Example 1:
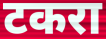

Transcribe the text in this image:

टकरा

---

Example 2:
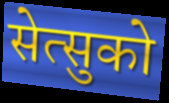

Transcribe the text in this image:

सेत्सुको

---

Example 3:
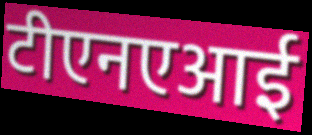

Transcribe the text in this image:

टीएनएआई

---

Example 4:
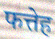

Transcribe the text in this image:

फत्तेह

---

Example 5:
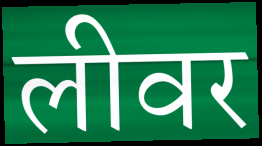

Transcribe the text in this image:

लीवर